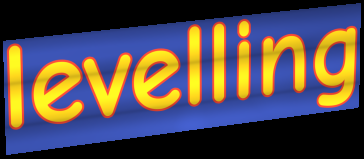
levelling